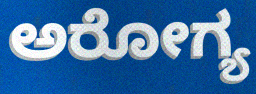
ಅರೋಗ್ಯ